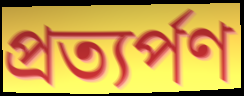
প্ৰত্যৰ্পণ